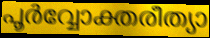
പൂർവ്വോക്തരീത്യാ